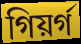
গিয়ৰ্গ